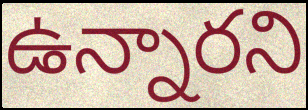
ఉన్నారని